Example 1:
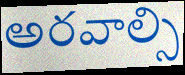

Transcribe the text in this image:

అరవాల్సి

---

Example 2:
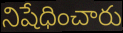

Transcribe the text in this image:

నిషేధించారు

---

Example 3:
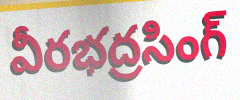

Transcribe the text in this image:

వీరభద్రసింగ్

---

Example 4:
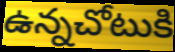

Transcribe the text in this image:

ఉన్నచోటుకి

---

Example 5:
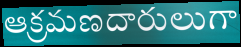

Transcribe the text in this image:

ఆక్రమణదారులుగా